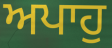
ਅਪਾਹੁ